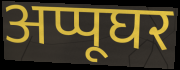
अप्पूघर